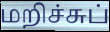
மறிச்சுப்